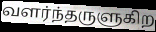
வளர்ந்தருளுகிற